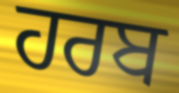
ਹਰਬ